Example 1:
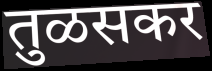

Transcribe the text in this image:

तुळसकर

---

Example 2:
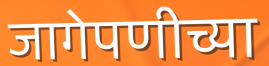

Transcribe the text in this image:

जागेपणीच्या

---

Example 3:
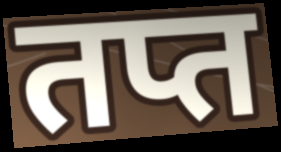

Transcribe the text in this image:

तप्त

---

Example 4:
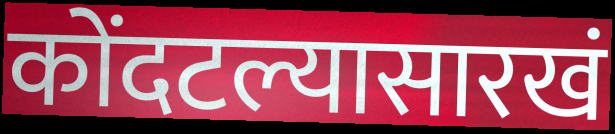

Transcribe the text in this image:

कोंदटल्यासारखं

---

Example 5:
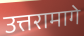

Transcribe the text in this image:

उत्तरामागे